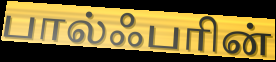
பால்ஃபரின்